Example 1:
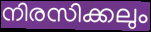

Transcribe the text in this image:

നിരസിക്കലും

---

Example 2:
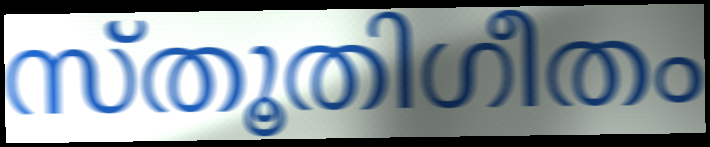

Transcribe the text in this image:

സ്തൂതിഗീതം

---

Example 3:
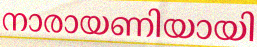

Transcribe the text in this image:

നാരായണിയായി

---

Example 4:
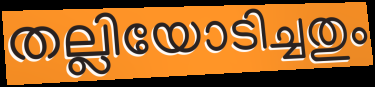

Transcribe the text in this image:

തല്ലിയോടിച്ചതും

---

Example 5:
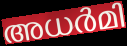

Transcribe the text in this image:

അധർമി